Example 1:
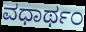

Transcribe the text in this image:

ವಧಾರ್ಥಂ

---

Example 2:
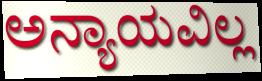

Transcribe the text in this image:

ಅನ್ಯಾಯವಿಲ್ಲ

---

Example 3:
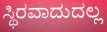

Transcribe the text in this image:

ಸ್ಥಿರವಾದುದಲ್ಲ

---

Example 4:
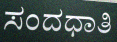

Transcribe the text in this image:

ಸಂದಧಾತಿ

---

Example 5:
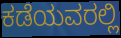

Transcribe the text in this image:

ಕಡೆಯವರಲ್ಲಿ